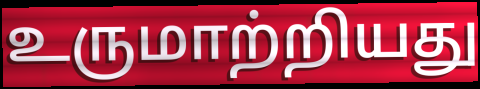
உருமாற்றியது